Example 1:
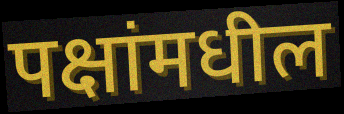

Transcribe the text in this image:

पक्षांमधील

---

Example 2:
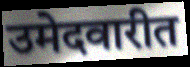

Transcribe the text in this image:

उमेदवारीत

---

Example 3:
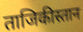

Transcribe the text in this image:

ताजिकीस्तान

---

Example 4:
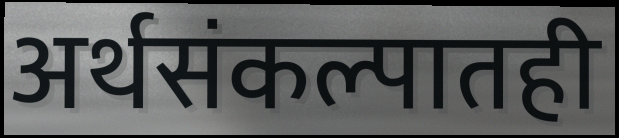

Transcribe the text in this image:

अर्थसंकल्पातही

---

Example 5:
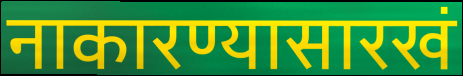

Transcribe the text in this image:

नाकारण्यासारखं